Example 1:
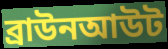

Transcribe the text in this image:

ব্রাউনআউট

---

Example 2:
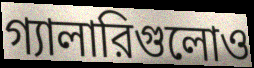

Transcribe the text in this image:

গ্যালারিগুলোও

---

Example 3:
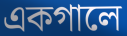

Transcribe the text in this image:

একগালে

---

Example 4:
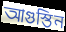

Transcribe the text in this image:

আগুস্তিন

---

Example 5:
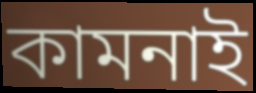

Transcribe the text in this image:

কামনাই